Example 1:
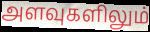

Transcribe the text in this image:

அளவுகளிலும்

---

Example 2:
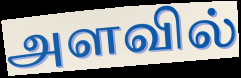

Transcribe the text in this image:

அளவில்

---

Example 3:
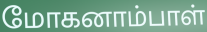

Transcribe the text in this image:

மோகனாம்பாள்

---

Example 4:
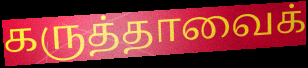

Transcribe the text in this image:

கருத்தாவைக்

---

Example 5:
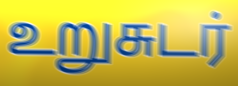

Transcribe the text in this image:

உறுசுடர்